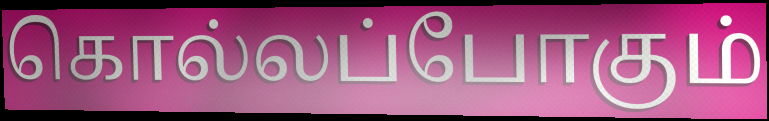
கொல்லப்போகும்